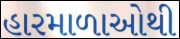
હારમાળાઓથી